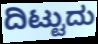
ದಿಟ್ಟುದು